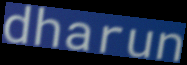
dharun